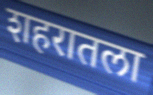
शहरातला